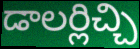
డాలర్లిచ్చి